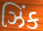
ઝિંક